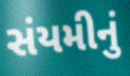
સંયમીનું